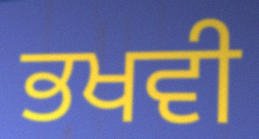
ਭਖਵੀ